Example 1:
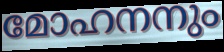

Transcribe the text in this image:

മോഹനനും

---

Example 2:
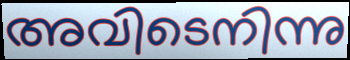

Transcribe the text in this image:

അവിടെനിന്നു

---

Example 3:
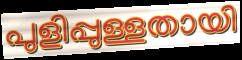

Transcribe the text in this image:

പുളിപ്പുള്ളതായി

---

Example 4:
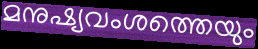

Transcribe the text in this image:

മനുഷ്യവംശത്തെയും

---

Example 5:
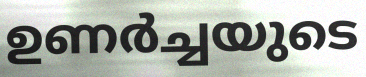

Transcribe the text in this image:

ഉണർച്ചയുടെ